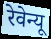
रेवेन्यू